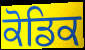
ਕੋਡਿਕ